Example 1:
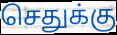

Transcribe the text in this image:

செதுக்கு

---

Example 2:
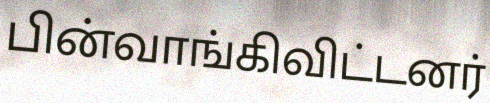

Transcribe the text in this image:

பின்வாங்கிவிட்டனர்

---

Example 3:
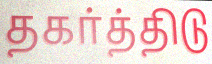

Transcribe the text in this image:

தகர்த்திடு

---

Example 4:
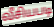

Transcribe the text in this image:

வீசியபடி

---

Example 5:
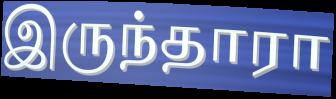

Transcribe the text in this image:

இருந்தாரா